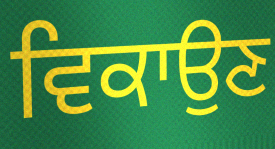
ਵਿਕਾਉਣ